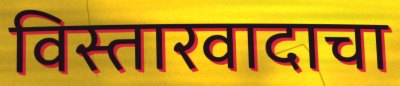
विस्तारवादाचा